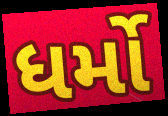
ધર્મો